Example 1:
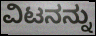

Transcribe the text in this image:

ವಿಟನನ್ನು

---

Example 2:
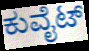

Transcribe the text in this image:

ಕುವೈಟ್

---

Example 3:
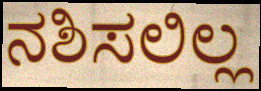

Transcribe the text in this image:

ನಶಿಸಲಿಲ್ಲ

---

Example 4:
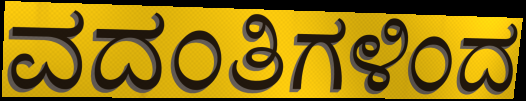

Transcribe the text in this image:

ವದಂತಿಗಳಿಂದ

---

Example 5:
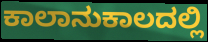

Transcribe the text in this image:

ಕಾಲಾನುಕಾಲದಲ್ಲಿ